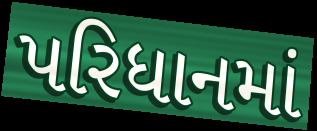
પરિધાનમાં